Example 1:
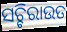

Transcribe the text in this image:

ସଚ୍ଚିରାଉତ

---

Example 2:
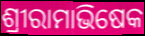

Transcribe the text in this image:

ଶ୍ରୀରାମାଭିଷେକ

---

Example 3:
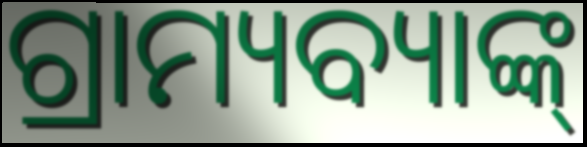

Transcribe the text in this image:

ଗ୍ରାମ୍ୟବ୍ୟାଙ୍କ୍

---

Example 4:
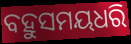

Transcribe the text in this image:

ବହୁସମୟଧରି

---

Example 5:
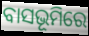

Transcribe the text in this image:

ବାସଭୂମିରେ